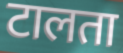
टालता